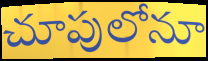
చూపులోనూ